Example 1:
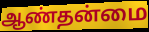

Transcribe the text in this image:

ஆண்தன்மை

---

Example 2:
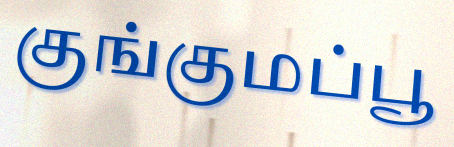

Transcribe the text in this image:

குங்குமப்பூ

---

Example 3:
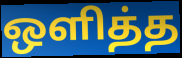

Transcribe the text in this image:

ஒளித்த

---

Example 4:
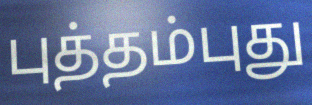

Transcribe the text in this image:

புத்தம்புது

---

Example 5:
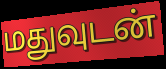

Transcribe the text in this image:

மதுவுடன்